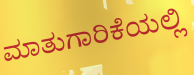
ಮಾತುಗಾರಿಕೆಯಲ್ಲಿ